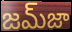
జమ్‌జా